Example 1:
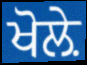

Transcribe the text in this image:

ਖੋਲ਼ੇ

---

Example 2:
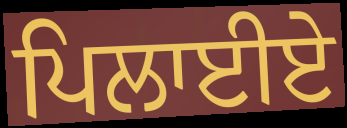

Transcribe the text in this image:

ਪਿਲਾਈਏ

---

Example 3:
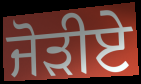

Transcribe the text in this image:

ਜੋੜੀਏ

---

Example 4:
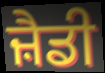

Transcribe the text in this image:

ਜ਼ੈਡੀ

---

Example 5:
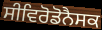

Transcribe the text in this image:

ਸੀਵਿਰੋਡੋਨੈਸਕ